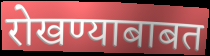
रोखण्याबाबत